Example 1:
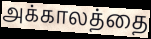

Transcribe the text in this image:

அக்காலத்தை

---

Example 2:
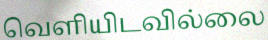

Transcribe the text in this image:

வெளியிடவில்லை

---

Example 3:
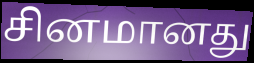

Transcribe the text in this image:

சினமானது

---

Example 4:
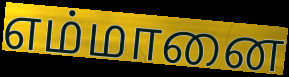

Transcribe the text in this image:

எம்மானை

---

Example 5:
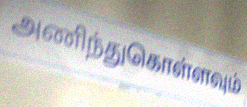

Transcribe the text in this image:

அணிந்துகொள்ளவும்